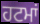
ਹਟਮਾਂ